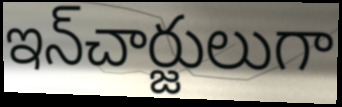
ఇన్‌చార్జులుగా